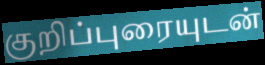
குறிப்புரையுடன்